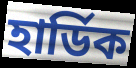
হাৰ্ডিক